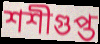
শশীগুপ্ত